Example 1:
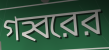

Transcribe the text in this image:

গহ্বরের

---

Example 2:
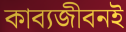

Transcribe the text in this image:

কাব্যজীবনই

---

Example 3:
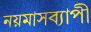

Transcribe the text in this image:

নয়মাসব্যাপী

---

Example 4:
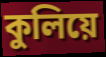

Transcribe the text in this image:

কুলিয়ে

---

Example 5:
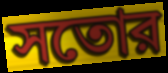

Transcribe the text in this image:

সতোর